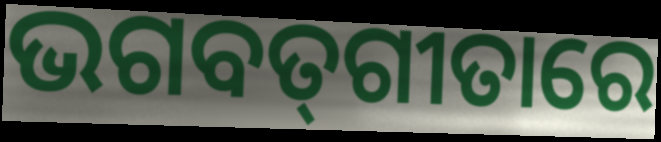
ଭଗବତ୍‌ଗୀତାରେ